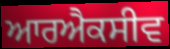
ਆਰਐਕਸੀਵ